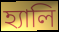
হ্যালি